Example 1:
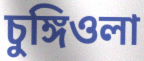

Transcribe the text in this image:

চুঙ্গিওলা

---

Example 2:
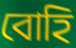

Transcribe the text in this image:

বোহি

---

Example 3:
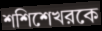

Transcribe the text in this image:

শশিশেখরকে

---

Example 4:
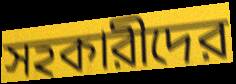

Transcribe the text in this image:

সহকারীদের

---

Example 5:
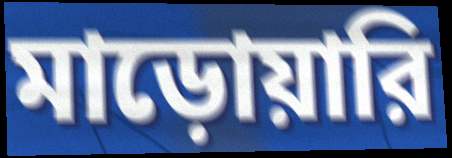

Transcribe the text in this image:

মাড়োয়ারি